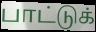
பாட்டுக்